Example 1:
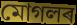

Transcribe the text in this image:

মোগলৰ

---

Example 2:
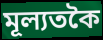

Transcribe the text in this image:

মূল্যতকৈ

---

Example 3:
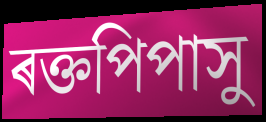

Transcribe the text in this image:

ৰক্তপিপাসু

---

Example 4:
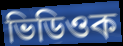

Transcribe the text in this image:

ভিডিওক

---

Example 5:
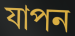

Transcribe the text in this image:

যাপন